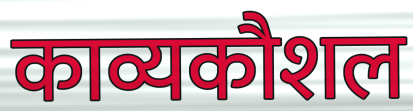
काव्यकौशल